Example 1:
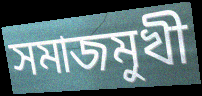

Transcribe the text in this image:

সমাজমুখী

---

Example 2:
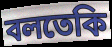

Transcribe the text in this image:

বলতেকি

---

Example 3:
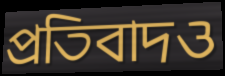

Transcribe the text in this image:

প্রতিবাদও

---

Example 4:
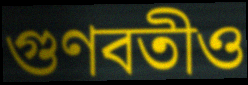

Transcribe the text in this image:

গুণবতীও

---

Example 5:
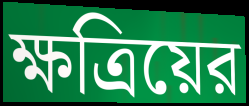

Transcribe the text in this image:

ক্ষত্রিয়ের